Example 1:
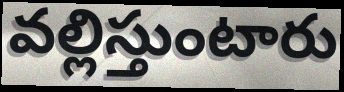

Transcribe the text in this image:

వల్లిస్తుంటారు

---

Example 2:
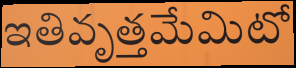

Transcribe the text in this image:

ఇతివృత్తమేమిటో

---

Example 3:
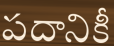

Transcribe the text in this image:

పదానికీ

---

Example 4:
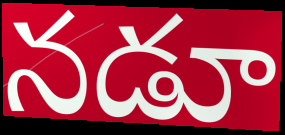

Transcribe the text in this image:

నడూ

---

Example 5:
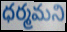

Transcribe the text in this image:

ధర్మమని